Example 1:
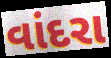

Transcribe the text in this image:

વાંદરા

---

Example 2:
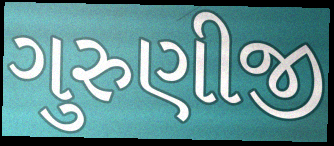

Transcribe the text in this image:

ગુરુણીજી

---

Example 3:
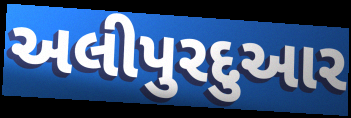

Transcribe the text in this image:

અલીપુરદુઆર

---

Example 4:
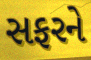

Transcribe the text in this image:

સફરને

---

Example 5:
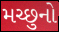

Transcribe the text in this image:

મચ્છુનો